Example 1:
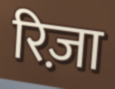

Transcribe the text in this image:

रिज़ा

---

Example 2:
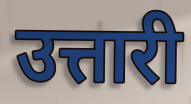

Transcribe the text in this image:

उत्तारी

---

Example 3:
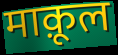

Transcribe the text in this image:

माक़ूल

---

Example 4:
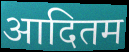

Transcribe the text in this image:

आदितम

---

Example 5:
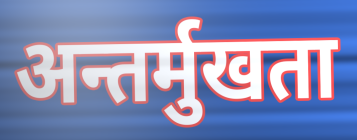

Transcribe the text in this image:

अन्तर्मुखता